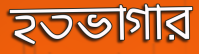
হতভাগার